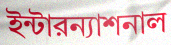
ইন্টারন্যাশনাল